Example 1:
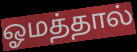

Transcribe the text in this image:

ஓமத்தால்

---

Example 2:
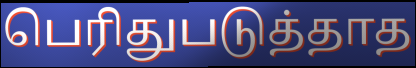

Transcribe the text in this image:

பெரிதுபடுத்தாத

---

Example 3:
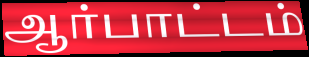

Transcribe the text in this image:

ஆர்பாட்டம்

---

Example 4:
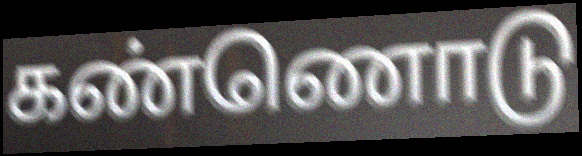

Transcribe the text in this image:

கண்ணொடு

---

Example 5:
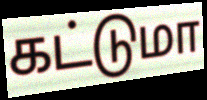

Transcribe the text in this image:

கட்டுமா